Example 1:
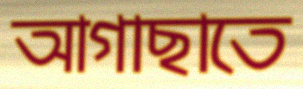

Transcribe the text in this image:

আগাছাতে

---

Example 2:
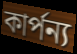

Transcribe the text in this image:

কার্পন্য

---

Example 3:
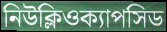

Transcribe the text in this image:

নিউক্লিওক্যাপসিড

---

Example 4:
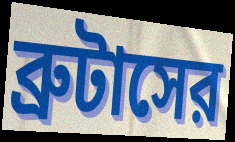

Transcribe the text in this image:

ব্রুটাসের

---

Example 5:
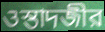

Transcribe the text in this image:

ওস্তাদজীর